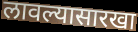
लावल्यासारखा